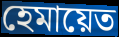
হেমায়েত